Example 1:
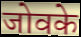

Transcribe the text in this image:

जोवके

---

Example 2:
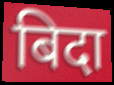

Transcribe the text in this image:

बिदा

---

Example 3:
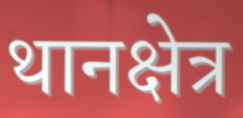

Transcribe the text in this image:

थानक्षेत्र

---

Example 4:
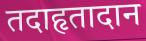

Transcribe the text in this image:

तदाहृतादान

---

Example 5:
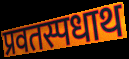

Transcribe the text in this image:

प्रवतस्पधाथ